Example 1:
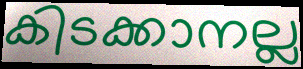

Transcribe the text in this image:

കിടക്കാനല്ല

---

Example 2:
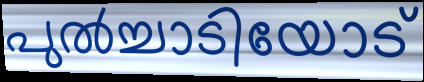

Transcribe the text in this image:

പുൽച്ചാടിയോട്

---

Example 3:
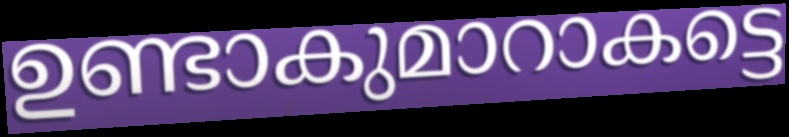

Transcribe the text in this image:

ഉണ്ടാകുമാറാകട്ടെ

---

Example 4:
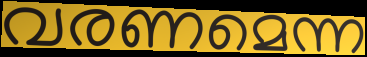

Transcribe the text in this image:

വരണമെന്ന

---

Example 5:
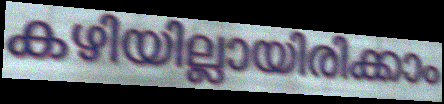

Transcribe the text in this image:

കഴിയില്ലായിരിക്കാം